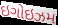
ઇગોઇઝમ